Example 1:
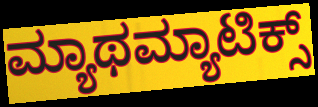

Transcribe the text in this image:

ಮ್ಯಾಥಮ್ಯಾಟಿಕ್ಸ್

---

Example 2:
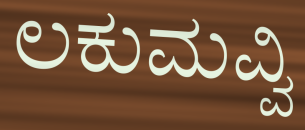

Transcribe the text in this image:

ಲಕುಮವ್ವಿ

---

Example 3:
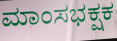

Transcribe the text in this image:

ಮಾಂಸಭಕ್ಷಕ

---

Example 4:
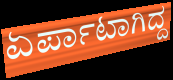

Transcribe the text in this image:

ಏರ್ಪಾಟಾಗಿದ್ದ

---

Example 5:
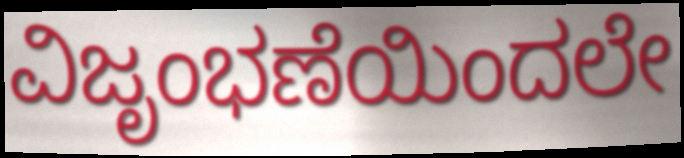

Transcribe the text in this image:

ವಿಜೃಂಭಣೆಯಿಂದಲೇ